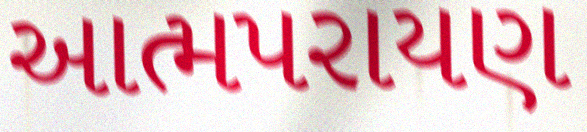
આત્મપરાયણ